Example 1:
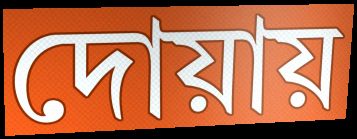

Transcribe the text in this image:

দোয়ায়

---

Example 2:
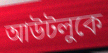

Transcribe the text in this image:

আউটলুকে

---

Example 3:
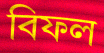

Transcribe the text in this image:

বিফল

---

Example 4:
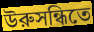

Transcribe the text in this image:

উরুসন্ধিতে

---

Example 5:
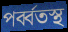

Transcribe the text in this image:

পর্ব্বতস্থ